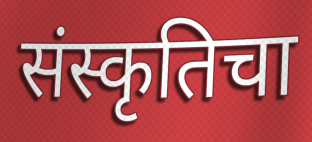
संस्कृतिचा